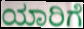
ಯಾರಿಗೆ